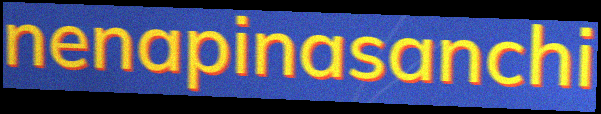
nenapinasanchi